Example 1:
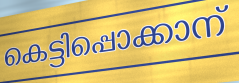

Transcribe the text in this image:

കെട്ടിപ്പൊക്കാന്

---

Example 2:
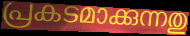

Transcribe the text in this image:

പ്രകടമാക്കുന്നതു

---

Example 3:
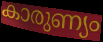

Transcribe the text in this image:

കാരുണ്യം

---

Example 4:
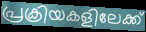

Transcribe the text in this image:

പ്രക്രിയകളിലേക്ക്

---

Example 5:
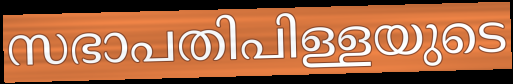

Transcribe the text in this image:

സഭാപതിപിള്ളയുടെ